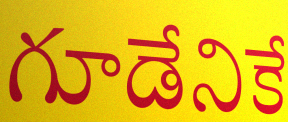
గూడేనికే